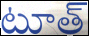
టూత్